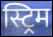
स्ट्रिम